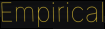
Empirical